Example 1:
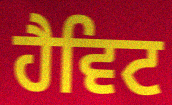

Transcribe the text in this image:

ਹੈਵਿਟ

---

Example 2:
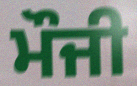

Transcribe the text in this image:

ਮੌਜੀ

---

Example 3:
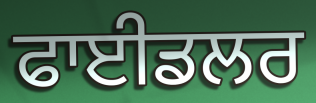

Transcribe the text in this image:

ਫਾਈਡਲਰ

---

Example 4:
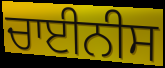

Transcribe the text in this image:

ਚਾਈਨੀਸ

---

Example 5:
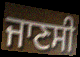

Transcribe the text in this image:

ਜਾਣਸੀ